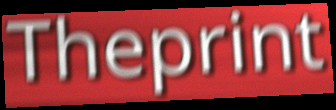
Theprint